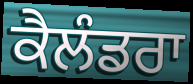
ਕੈਲੰਡਰਾ